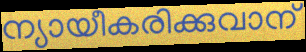
ന്യായീകരിക്കുവാന്